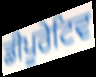
ਡੀਪੂਰੇਟਿਵ